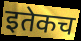
इतेकच